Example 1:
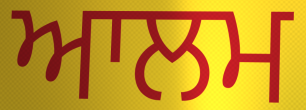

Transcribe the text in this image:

ਆਲਮ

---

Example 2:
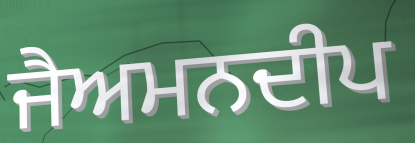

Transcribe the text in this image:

ਜੈਅਮਨਦੀਪ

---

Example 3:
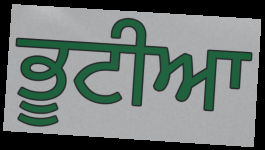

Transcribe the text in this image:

ਭੂਟੀਆ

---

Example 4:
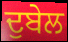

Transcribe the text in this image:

ਦੁਬੇਲ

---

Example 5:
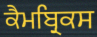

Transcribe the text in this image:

ਕੈਮਬ੍ਰਿਕਸ